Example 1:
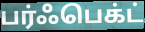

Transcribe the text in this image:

பர்ஃபெக்ட்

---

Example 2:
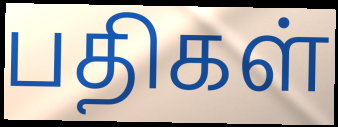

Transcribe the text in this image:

பதிகள்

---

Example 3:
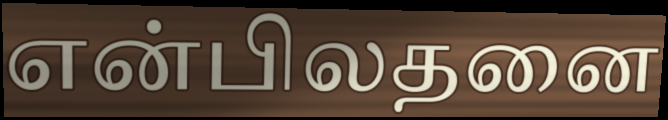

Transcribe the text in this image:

என்பிலதனை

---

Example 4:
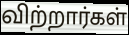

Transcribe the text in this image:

விற்றார்கள்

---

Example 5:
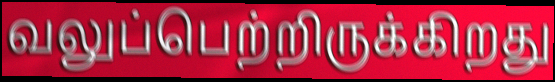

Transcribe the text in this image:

வலுப்பெற்றிருக்கிறது